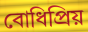
বোধিপ্রিয়